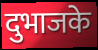
दुभाजके